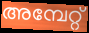
അമ്പേറ്റ്